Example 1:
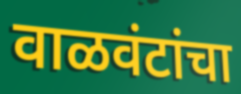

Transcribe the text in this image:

वाळवंटांचा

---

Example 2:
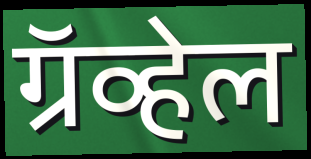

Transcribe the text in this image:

ग्रॅव्हेल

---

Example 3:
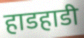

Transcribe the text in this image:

हाडहाडी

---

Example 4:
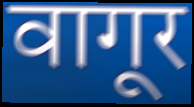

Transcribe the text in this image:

वागूर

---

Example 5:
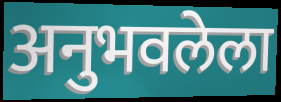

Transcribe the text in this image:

अनुभवलेला